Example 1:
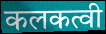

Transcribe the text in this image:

कलकत्वी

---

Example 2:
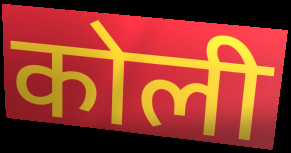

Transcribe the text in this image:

कोली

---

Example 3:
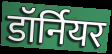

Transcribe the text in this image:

डॉर्नियर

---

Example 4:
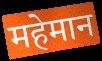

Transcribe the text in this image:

महेमान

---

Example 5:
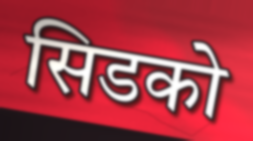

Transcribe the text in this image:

सिडको